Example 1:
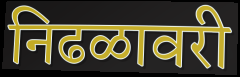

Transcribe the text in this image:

निढळावरी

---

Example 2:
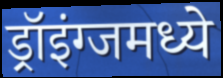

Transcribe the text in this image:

ड्रॉइंग्जमध्ये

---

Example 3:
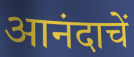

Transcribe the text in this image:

आनंदाचें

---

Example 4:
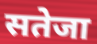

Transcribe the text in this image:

सतेजा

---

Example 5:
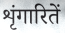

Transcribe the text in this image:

शृंगारितें